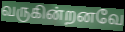
வருகின்றனவே